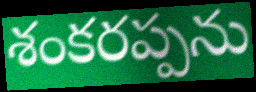
శంకరప్పను